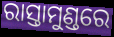
ରାସ୍ତାମୁଣ୍ଡରେ